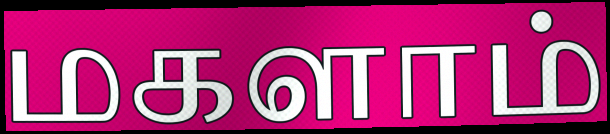
மகளாம்